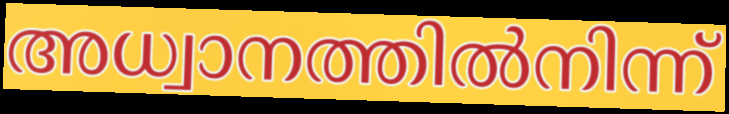
അധ്വാനത്തിൽനിന്ന്